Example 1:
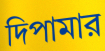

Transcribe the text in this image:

দিপামার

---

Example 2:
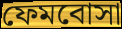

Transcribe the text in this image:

ফেমবোসা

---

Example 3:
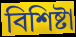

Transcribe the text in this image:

বিশিষ্টা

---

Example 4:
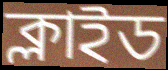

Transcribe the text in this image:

ক্লাইড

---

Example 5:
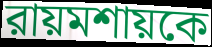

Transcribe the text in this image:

রায়মশায়কে